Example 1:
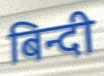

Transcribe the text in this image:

बिन्दी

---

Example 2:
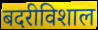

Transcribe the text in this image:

बदरीविशाल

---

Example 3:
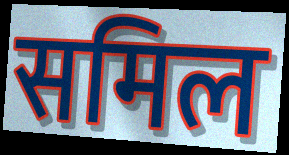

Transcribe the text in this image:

समिल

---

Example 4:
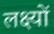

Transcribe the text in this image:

लक्ष्यों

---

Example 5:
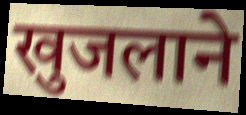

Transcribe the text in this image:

खुजलाने